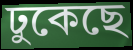
ঢুকেছে